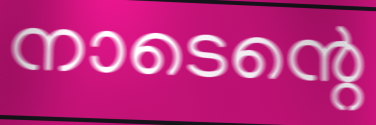
നാടെന്റെ